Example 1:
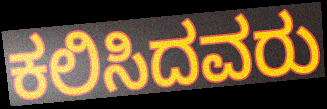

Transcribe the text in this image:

ಕಲಿಸಿದವರು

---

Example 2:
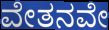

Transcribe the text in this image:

ವೇತನವೇ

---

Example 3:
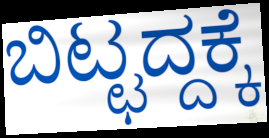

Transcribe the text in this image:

ಬಿಟ್ಟದ್ದಕ್ಕೆ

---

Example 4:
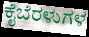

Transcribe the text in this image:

ಕೈಬೆರಳುಗಳ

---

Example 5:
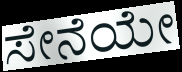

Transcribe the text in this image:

ಸೇನೆಯೇ